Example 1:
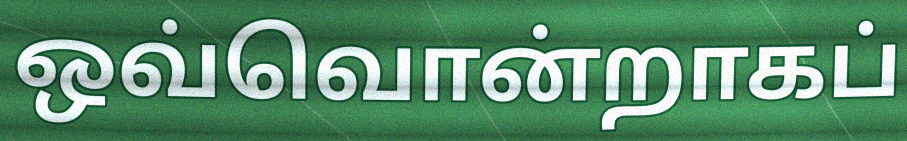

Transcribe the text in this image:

ஒவ்வொன்றாகப்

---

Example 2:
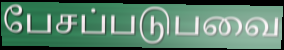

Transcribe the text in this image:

பேசப்படுபவை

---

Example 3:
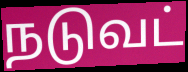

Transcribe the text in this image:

நடுவட்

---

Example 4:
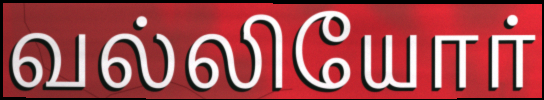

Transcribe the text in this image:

வல்லியோர்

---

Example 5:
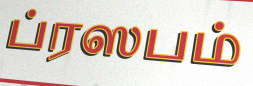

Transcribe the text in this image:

ப்ரஸபம்